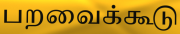
பறவைக்கூடு